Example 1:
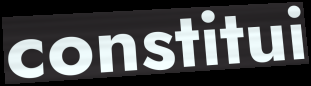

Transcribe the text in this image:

constitui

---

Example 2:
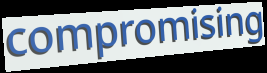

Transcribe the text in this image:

compromising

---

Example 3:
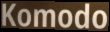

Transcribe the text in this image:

Komodo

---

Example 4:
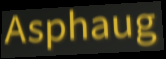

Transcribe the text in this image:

Asphaug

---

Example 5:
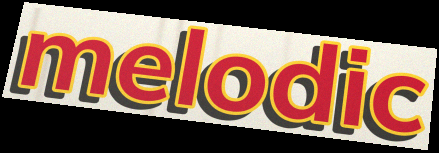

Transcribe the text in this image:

melodic